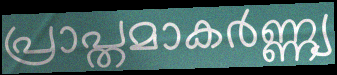
പ്രാപ്തമാകർണ്ണ്യ